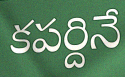
కపర్దినే